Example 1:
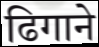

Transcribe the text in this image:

ढिगाने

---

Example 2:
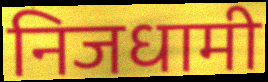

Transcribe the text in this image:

निजधामी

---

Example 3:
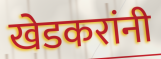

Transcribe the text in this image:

खेडकरांनी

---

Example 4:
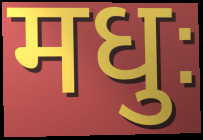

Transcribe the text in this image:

मधुः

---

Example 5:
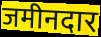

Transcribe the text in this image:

जमीनदार